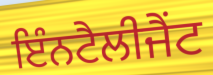
ਇੰਨਟੈਲੀਜੈਂਟ